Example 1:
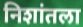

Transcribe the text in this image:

निशांतला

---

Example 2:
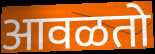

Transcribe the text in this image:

आवळतो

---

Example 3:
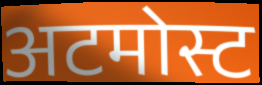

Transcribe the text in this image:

अटमोस्ट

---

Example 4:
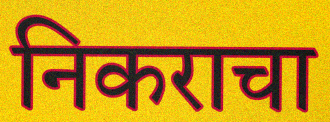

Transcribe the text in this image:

निकराचा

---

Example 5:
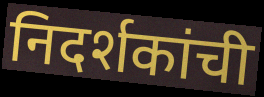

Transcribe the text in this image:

निदर्शकांची